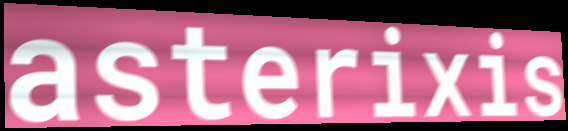
asterixis